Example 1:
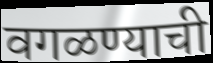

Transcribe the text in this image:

वगळण्याची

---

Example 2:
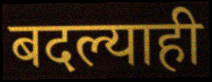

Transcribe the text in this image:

बदल्याही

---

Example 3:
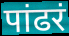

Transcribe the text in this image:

पांढरं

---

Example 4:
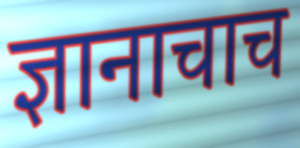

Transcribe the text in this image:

ज्ञानाचाच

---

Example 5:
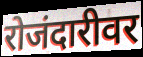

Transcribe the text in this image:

रोजंदारीवर